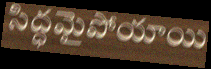
సిద్ధమైపోయాయి